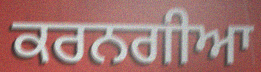
ਕਰਨਗੀਆ